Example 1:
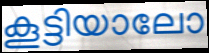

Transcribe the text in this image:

കൂട്ടിയാലോ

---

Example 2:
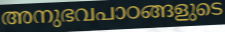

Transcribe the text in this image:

അനുഭവപാഠങ്ങളുടെ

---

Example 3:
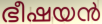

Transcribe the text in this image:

ഭീഷയൻ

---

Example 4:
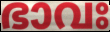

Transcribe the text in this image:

ഭാവഃ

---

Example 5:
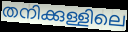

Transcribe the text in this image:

തനിക്കുള്ളിലെ